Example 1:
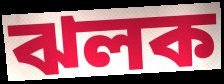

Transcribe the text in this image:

ঝলক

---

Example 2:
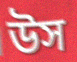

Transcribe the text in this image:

উস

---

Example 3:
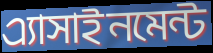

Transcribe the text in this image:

এ্যাসাইনমেন্ট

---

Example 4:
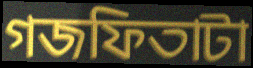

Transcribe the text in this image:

গজফিতাটা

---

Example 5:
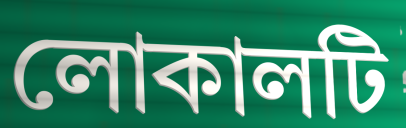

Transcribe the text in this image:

লোকালটি